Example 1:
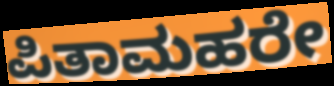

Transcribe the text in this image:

ಪಿತಾಮಹರೇ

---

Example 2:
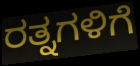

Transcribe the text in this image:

ರತ್ನಗಳಿಗೆ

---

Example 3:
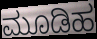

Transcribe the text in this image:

ಮೂಡಿಹ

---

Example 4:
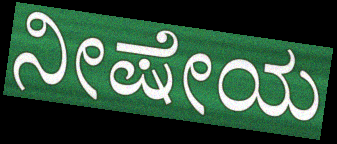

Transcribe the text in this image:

ನೀಷೇಯ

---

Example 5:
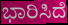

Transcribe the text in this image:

ಭಾರಿಸಿದೆ